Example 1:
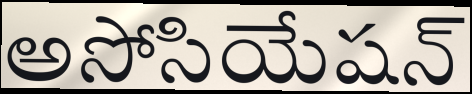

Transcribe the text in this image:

అసోసియేషన్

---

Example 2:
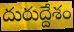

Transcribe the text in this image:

దురుద్దేశం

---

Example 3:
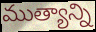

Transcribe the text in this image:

ముత్యాన్ని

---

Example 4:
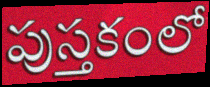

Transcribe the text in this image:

పుస్తకంలో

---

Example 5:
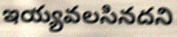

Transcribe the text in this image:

ఇయ్యవలసినదని